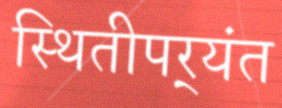
स्थितीपर्यंत